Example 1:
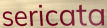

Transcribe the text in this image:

sericata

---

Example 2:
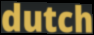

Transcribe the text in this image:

dutch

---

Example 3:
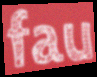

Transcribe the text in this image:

fau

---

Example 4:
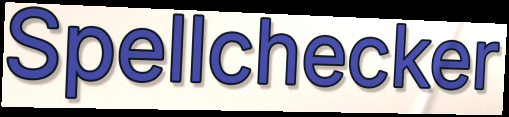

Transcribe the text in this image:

Spellchecker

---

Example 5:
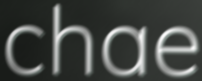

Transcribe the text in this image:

chae